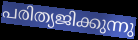
പരിത്യജിക്കുന്നു